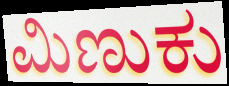
ಮಿಣುಕು